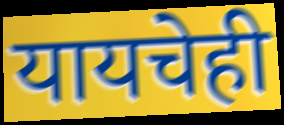
यायचेही